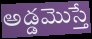
అడ్డమొస్తే